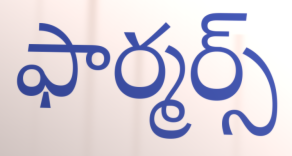
ఫార్మర్స్